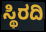
ಸ್ಥಿರದಿ